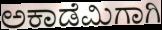
ಅಕಾಡೆಮಿಗಾಗಿ